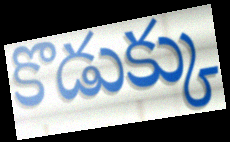
కొడుక్కు